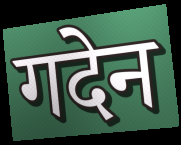
गदेन